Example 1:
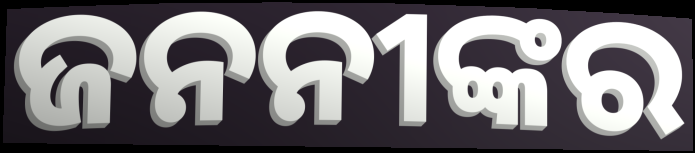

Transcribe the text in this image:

ଜନନୀଙ୍କର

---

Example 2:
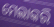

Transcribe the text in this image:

ମେଲାକରି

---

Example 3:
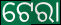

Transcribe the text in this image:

ଟେରା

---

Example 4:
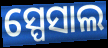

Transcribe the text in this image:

ସ୍ପେସାଲ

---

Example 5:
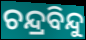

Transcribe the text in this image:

ଚନ୍ଦ୍ରବିନ୍ଦୁ